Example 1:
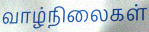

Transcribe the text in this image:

வாழ்நிலைகள்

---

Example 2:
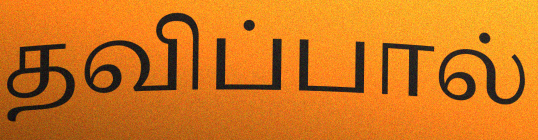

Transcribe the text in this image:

தவிப்பால்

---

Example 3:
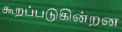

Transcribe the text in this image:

கூறப்படுகின்றன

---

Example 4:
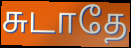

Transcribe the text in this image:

சுடாதே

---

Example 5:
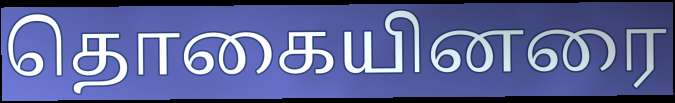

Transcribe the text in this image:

தொகையினரை